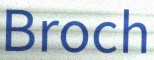
Broch